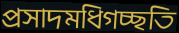
প্রসাদমধিগচ্ছতি